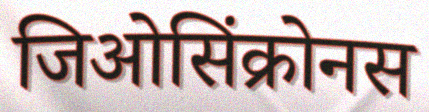
जिओसिंक्रोनस